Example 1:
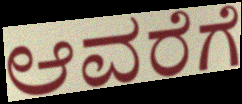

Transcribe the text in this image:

ಆವರೆಗೆ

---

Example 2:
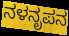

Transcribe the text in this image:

ನಳನೃಪನ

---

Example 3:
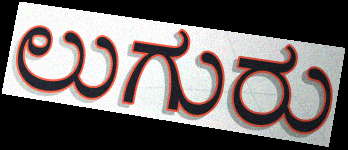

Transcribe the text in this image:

ಲುಗುರು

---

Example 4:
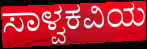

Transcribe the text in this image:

ಸಾಳ್ವಕವಿಯ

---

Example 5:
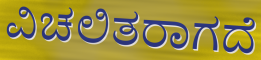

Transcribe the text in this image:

ವಿಚಲಿತರಾಗದೆ